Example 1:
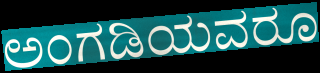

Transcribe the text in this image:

ಅಂಗಡಿಯವರೂ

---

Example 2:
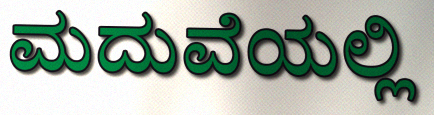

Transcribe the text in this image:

ಮದುವೆಯಲ್ಲಿ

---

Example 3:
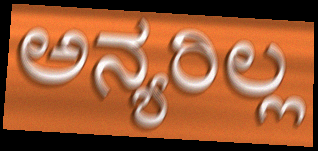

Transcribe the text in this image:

ಅನ್ಯರಿಲ್ಲ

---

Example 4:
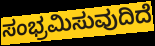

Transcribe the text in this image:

ಸಂಭ್ರಮಿಸುವುದಿದೆ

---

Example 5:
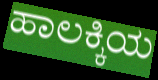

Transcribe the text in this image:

ಹಾಲಕ್ಕಿಯ